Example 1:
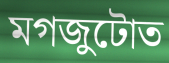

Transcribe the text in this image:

মগজুটোত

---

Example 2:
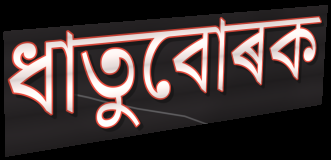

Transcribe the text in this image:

ধাতুবোৰক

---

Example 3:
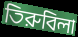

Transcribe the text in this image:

তিৰুবিলা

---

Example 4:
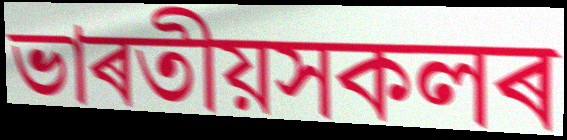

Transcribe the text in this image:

ভাৰতীয়সকলৰ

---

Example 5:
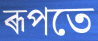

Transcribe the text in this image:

ৰূপতে